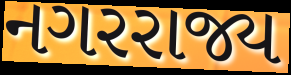
નગરરાજ્ય